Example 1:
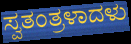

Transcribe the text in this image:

ಸ್ವತಂತ್ರಳಾದಳು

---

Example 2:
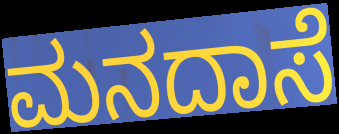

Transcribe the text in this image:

ಮನದಾಸೆ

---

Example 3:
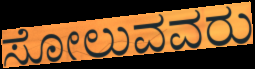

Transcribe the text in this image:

ಸೋಲುವವರು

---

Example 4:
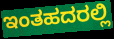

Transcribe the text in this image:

ಇಂತಹದರಲ್ಲಿ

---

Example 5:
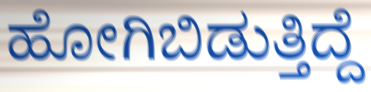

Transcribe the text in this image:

ಹೋಗಿಬಿಡುತ್ತಿದ್ದೆ